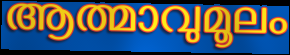
ആത്മാവുമൂലം